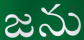
జను